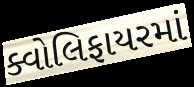
ક્વોલિફાયરમાં